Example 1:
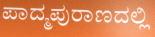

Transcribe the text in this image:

ಪಾದ್ಮಪುರಾಣದಲ್ಲಿ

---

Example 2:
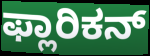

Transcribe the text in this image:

ಫ್ಲಾರಿಕನ್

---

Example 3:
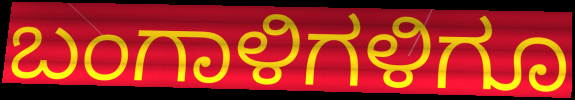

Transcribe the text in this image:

ಬಂಗಾಳಿಗಳಿಗೂ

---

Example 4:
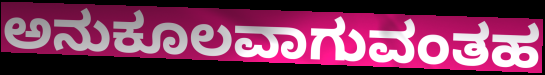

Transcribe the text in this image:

ಅನುಕೂಲವಾಗುವಂತಹ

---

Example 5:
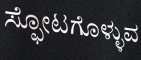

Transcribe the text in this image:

ಸ್ಫೋಟಗೊಳ್ಳುವ